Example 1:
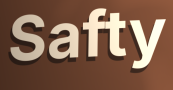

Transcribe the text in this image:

Safty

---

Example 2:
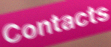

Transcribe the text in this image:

Contacts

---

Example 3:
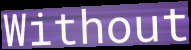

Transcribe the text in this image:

Without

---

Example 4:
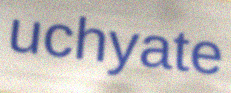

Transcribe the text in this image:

uchyate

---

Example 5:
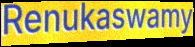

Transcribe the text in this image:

Renukaswamy